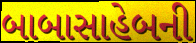
બાબાસાહેબની